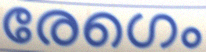
രേഗെം